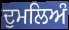
ਦੁਮਲਿਅੰ